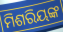
ମିଶରିୟଙ୍କ